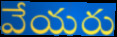
వేయరు